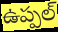
ఉప్పల్